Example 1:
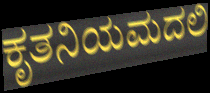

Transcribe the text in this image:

ಕೃತನಿಯಮದಲಿ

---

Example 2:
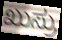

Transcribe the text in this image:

ಖುಸ್ರು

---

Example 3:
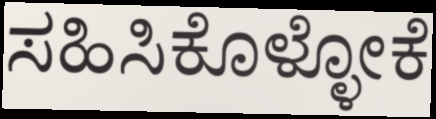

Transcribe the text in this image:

ಸಹಿಸಿಕೊಳ್ಳೋಕೆ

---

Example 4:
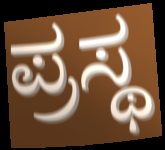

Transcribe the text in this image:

ಪ್ರಸ್ಥ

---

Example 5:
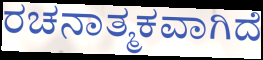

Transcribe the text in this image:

ರಚನಾತ್ಮಕವಾಗಿದೆ